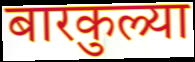
बारकुल्या